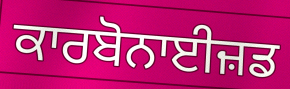
ਕਾਰਬੋਨਾਈਜ਼ਡ